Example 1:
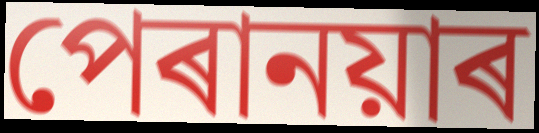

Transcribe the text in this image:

পেৰানয়াৰ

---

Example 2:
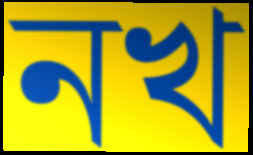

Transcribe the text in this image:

নখ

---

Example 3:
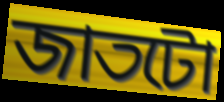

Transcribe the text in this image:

জাতটো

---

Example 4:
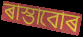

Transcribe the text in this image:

ৰাস্তাবোৰ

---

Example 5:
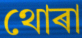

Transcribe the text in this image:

থোৰা